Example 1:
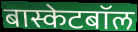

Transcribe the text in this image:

बास्केटबॉल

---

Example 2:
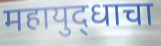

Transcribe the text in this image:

महायुद्धाचा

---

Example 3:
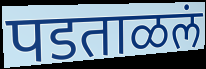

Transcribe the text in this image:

पडताळलं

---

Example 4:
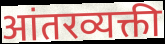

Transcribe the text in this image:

आंतरव्यक्ती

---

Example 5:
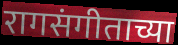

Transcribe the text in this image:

रागसंगीताच्या